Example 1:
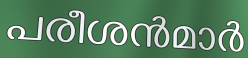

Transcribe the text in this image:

പരീശൻമാർ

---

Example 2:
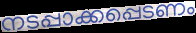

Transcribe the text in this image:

നടപ്പാക്കപ്പെടണം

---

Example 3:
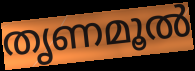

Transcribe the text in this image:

തൃണമൂൽ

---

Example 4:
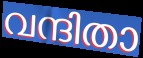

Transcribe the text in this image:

വന്ദിതാ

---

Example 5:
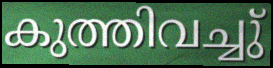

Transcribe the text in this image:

കുത്തിവച്ചു്